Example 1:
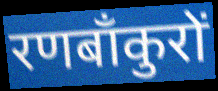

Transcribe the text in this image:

रणबाँकुरों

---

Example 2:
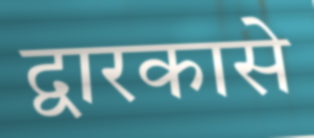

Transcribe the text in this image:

द्वारकासे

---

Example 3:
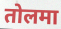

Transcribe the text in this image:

तोलमा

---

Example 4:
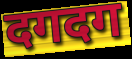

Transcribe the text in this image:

दगदग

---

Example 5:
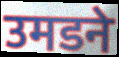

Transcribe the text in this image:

उमडने